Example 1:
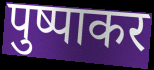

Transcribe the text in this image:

पुष्पाकर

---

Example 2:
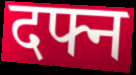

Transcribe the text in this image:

दफ्न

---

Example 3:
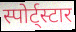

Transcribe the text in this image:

स्पोर्ट्स्टार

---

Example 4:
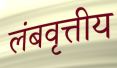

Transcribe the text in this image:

लंबवृत्तीय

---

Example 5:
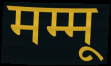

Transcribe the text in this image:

मम्मू